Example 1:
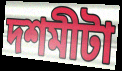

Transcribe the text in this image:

দশমীটা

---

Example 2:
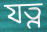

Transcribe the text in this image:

যত্ন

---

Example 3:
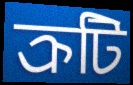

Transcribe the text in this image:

ক্রটি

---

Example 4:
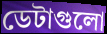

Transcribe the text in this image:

ডেটাগুলো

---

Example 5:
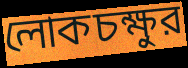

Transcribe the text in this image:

লোকচক্ষুর